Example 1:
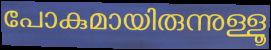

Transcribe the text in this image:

പോകുമായിരുന്നുള്ളൂ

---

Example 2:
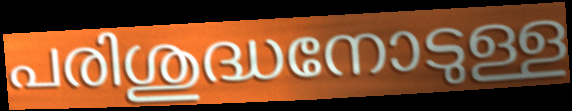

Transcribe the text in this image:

പരിശുദ്ധനോടുള്ള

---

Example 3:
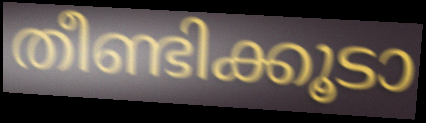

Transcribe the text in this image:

തീണ്ടിക്കൂടാ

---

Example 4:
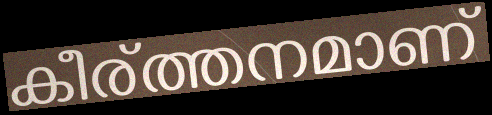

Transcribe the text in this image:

കീര്ത്തനമാണ്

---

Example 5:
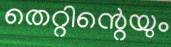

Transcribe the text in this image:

തെറ്റിന്റെയും